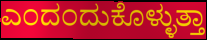
ಎಂದಂದುಕೊಳ್ಳುತ್ತಾ